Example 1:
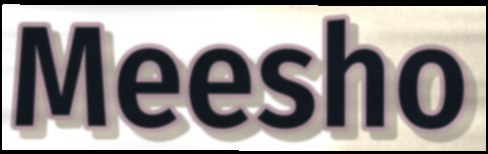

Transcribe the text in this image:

Meesho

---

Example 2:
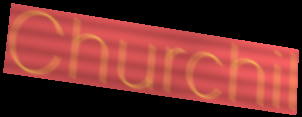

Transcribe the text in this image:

Churchil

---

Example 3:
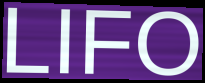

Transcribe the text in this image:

LIFO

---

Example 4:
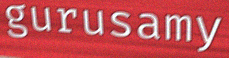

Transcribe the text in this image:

gurusamy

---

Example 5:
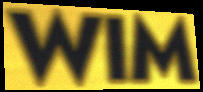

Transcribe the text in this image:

WIM